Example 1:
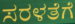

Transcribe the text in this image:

ಸರಳತೆಗೆ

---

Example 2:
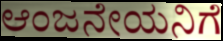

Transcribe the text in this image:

ಆಂಜನೇಯನಿಗೆ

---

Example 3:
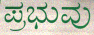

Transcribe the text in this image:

ಪ್ರಭುವು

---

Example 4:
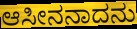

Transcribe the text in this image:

ಆಸೀನನಾದನು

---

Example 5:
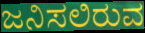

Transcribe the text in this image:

ಜನಿಸಲಿರುವ